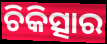
ଚିକିତ୍ସାର